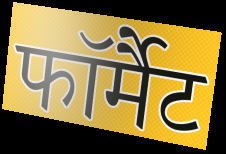
फॉर्मैट